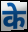
के